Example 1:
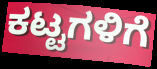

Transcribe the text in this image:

ಕಟ್ಟಗಳಿಗೆ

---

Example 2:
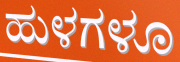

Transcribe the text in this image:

ಹುಳಗಳೂ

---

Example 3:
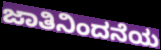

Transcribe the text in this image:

ಜಾತಿನಿಂದನೆಯ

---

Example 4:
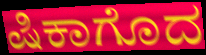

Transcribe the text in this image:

ಷಿಕಾಗೊದ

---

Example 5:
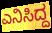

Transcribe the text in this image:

ಎನಿಸಿದ್ದ